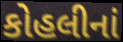
કોહલીનાં